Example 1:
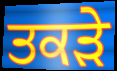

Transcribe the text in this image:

ਤਕੜੇ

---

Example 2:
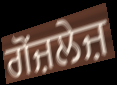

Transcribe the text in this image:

ਗੋਂਜ਼ਲੇਜ਼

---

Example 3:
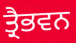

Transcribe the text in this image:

ਤ੍ਰੈਭਵਨ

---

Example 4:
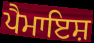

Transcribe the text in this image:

ਪੈਮਾਇਸ਼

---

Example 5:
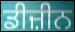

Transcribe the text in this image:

ਡੀਜ਼ੀਨ